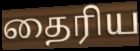
தைரிய